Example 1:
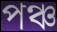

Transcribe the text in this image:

পঞ্চ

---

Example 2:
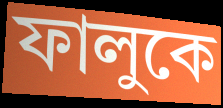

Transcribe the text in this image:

ফালুকে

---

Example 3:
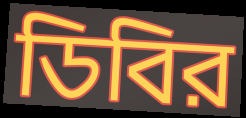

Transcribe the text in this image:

ডিবির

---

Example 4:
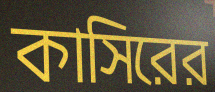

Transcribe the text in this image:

কাসিরের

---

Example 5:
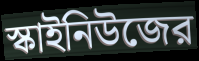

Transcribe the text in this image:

স্কাইনিউজের